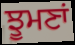
ਝੂਮਣਾਂ